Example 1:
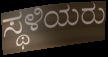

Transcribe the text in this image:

ಸ್ಥಳಿಯರು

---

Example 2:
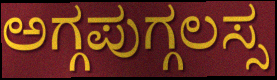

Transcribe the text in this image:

ಅಗ್ಗಪುಗ್ಗಲಸ್ಸ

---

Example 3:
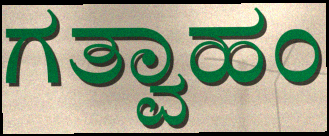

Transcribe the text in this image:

ಗತ್ವಾಹಂ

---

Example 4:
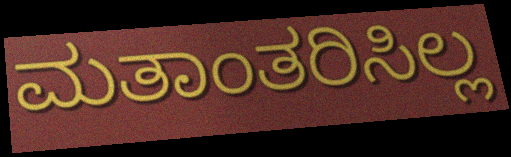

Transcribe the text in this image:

ಮತಾಂತರಿಸಿಲ್ಲ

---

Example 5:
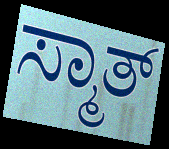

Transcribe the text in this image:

ಸ್ಮಾತ್